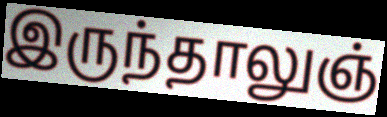
இருந்தாலுஞ்